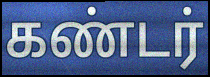
கண்டர்